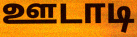
ஊடாடி